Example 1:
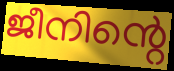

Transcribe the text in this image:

ജീനിന്റെ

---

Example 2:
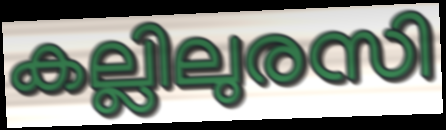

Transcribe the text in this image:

കല്ലിലുരസി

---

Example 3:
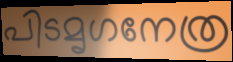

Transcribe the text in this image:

പിടമൃഗനേത്ര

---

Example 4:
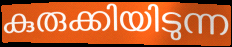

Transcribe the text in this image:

കുരുക്കിയിടുന്ന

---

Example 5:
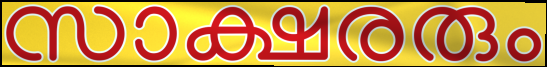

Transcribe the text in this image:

സാക്ഷരരും